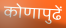
कोणापुढें